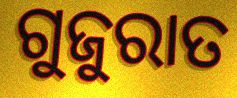
ଗୁଜୁରାତ